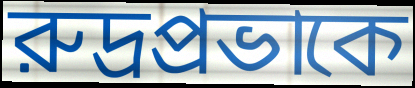
রুদ্রপ্রভাকে